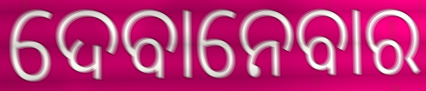
ଦେବାନେବାର